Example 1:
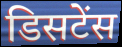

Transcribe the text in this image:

डिसटेंस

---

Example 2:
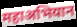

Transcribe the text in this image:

महाअभियान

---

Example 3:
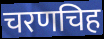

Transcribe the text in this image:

चरणचिह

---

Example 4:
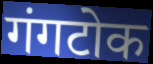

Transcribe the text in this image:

गंगटोक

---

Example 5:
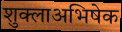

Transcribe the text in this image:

शुक्लाअभिषेक